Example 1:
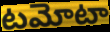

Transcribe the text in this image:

టమోటా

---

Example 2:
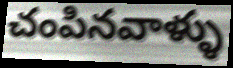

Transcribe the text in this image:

చంపినవాళ్ళు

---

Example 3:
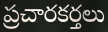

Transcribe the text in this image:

ప్రచారకర్తలు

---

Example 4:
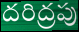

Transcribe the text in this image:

దరిద్రపు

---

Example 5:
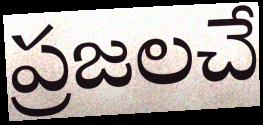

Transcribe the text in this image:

ప్రజలచే